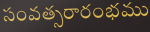
సంవత్సరారంభము